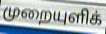
முறையுளிக்